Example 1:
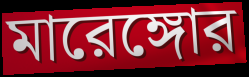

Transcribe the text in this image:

মারেঙ্গোর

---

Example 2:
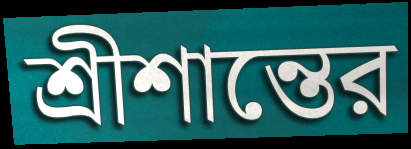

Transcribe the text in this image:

শ্রীশান্তের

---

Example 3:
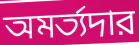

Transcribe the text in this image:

অমর্ত্যদার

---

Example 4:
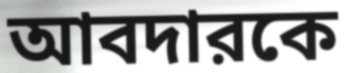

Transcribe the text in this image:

আবদারকে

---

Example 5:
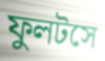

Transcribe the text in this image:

ফুলটসে